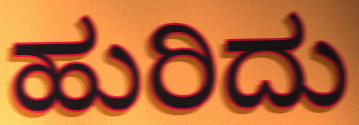
ಹುರಿದು